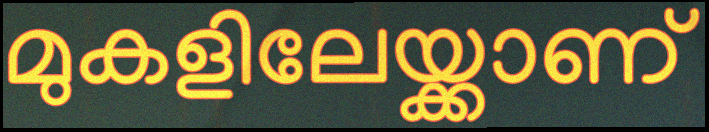
മുകളിലേയ്ക്കാണ്